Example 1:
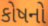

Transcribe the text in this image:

કોષનો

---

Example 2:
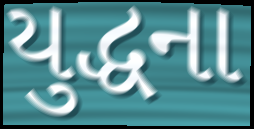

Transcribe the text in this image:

યુદ્ધના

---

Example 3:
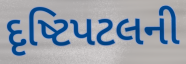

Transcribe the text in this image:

દૃષ્ટિપટલની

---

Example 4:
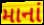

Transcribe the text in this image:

માનાં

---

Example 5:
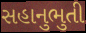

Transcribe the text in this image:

સહાનુભુતી